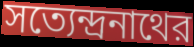
সত্যেন্দ্রনাথের